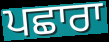
ਪਛਾਰਾ